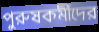
পুরুষকর্মীদের